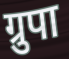
ग्रुपा